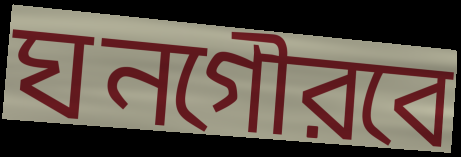
ঘনগৌরবে